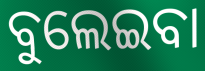
ବୁଲେଇବା